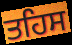
ਤਹਿਸ